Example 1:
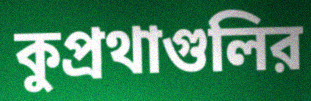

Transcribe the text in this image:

কুপ্রথাগুলির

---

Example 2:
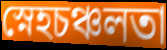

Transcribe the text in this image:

স্নেহচঞ্চলতা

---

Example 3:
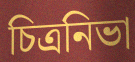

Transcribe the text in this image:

চিত্রনিভা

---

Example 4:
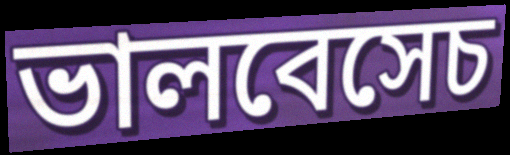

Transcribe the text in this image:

ভালবেসেচ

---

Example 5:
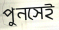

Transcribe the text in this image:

পুনসেই